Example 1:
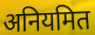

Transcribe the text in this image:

अनियमित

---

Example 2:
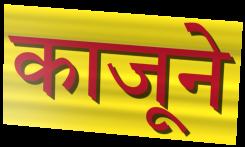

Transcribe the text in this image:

काजूने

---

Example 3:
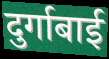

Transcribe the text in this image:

दुर्गाबाई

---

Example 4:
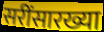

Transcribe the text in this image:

सरींसारख्या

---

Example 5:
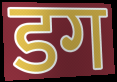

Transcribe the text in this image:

डग